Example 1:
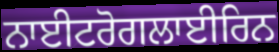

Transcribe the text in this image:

ਨਾਈਟਰੋਗਲਾਈਰਿਨ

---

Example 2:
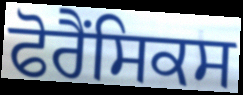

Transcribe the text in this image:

ਫੋਰੈਂਸਿਕਸ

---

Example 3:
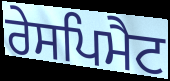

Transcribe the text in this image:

ਰੇਸਪਿਮੈਟ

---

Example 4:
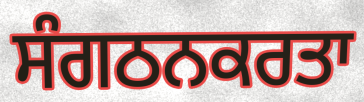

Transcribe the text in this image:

ਸੰਗਠਨਕਰਤਾ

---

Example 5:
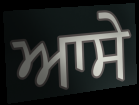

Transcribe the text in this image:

ਆਸੇ